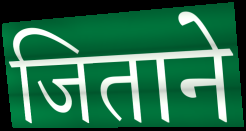
जिताने